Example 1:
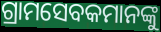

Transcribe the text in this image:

ଗ୍ରାମସେବକମାନଙ୍କୁ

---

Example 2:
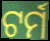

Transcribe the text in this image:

ଟର୍ମ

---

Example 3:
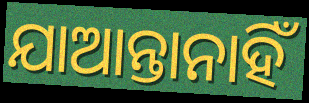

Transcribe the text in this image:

ଯାଆନ୍ତାନାହିଁ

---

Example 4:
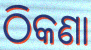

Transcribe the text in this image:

ଠିକଣା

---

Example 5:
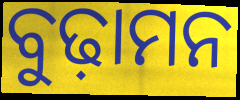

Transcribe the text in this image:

ବୁଢ଼ାମନ